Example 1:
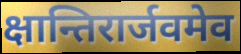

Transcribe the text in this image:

क्षान्तिरार्जवमेव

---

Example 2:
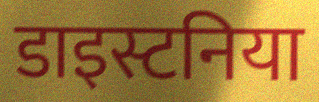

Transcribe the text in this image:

डाइस्टनिया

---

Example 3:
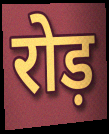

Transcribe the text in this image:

रोड़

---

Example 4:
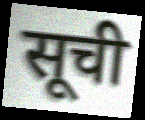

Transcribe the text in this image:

सूची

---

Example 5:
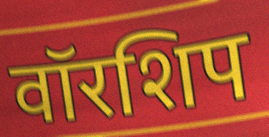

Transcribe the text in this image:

वॉरशिप